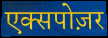
एक्सपोज़र